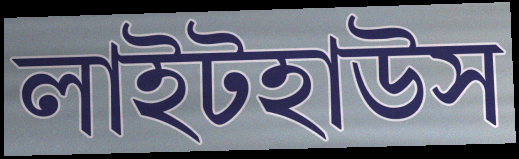
লাইটহাউস